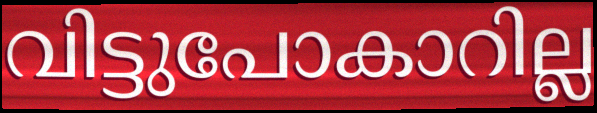
വിട്ടുപോകാറില്ല